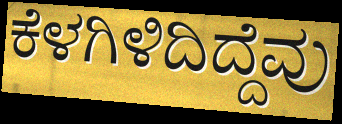
ಕೆಳಗಿಳಿದಿದ್ದೆವು